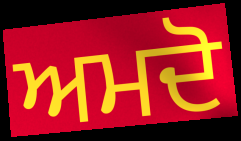
ਅਮਦੋ